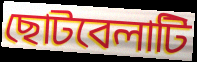
ছোটবেলাটি